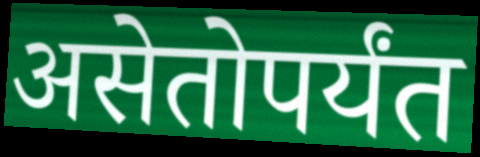
असेतोपर्यंत